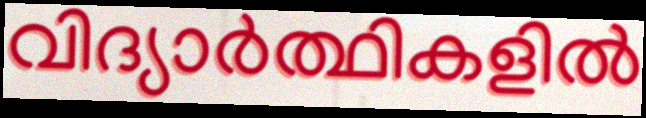
വിദ്യാർത്ഥികളിൽ